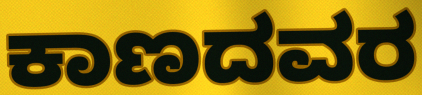
ಕಾಣದವರ